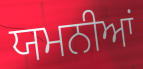
ਯਮਨੀਆਂ